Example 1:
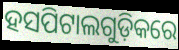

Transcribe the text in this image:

ହସପିଟାଲଗୁଡ଼ିକରେ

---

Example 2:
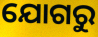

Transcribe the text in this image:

ଯୋଗରୁ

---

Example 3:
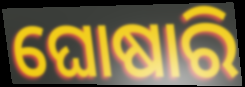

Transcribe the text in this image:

ଘୋଷାରି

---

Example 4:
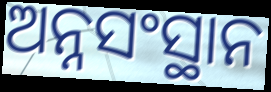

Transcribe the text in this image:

ଅନ୍ନସଂସ୍ଥାନ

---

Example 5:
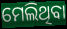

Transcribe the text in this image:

ମେଲିଥିବା